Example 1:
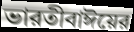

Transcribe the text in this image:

ভারতীবাঈয়ের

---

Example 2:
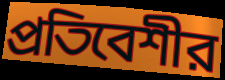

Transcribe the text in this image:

প্রতিবেশীর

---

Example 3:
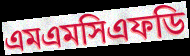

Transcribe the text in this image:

এমএমসিএফডি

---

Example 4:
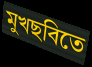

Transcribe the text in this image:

মুখছবিতে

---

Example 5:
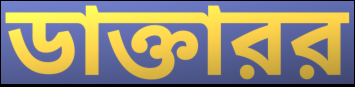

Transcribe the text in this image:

ডাক্তারর